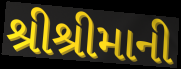
શ્રીશ્રીમાની